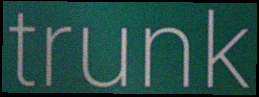
trunk